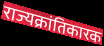
राज्यक्रांतिकारक